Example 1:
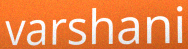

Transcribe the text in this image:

varshani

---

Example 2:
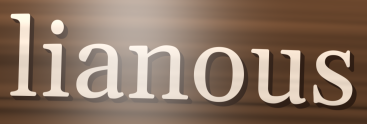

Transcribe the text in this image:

lianous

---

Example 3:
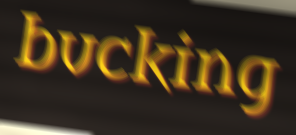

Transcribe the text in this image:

bucking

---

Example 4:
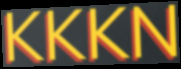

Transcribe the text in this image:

KKKN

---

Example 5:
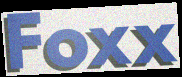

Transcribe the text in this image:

Foxx